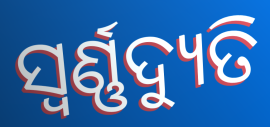
ସ୍ୱର୍ଣ୍ଣଦ୍ୟୁତି